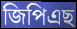
জিপিএছ